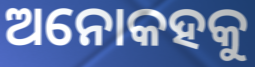
ଅନୋକହକୁ